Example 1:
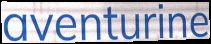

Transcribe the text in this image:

aventurine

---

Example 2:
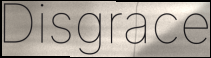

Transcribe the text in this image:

Disgrace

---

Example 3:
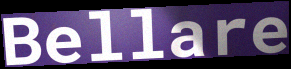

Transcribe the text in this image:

Bellare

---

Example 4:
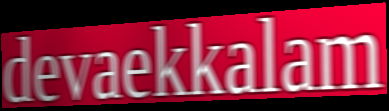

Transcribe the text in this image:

devaekkalam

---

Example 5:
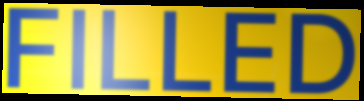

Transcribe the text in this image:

FILLED